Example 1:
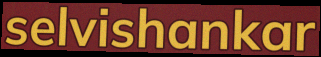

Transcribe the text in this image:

selvishankar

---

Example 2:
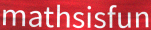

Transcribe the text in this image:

mathsisfun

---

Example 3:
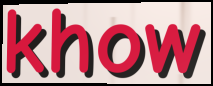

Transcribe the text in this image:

khow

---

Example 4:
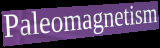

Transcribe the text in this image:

Paleomagnetism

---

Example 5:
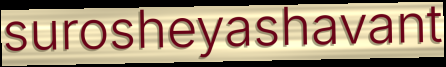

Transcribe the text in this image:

surosheyashavant